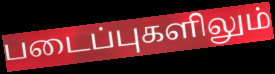
படைப்புகளிலும்